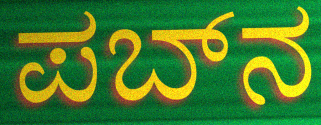
ಪಬ್‌ನ